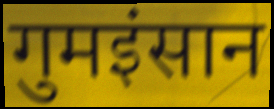
गुमइंसान